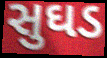
સુઘડ